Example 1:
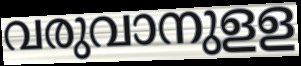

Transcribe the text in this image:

വരുവാനുളള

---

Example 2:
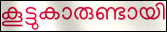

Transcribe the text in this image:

കൂട്ടുകാരുണ്ടായി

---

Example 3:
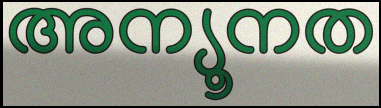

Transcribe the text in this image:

അന്യൂനത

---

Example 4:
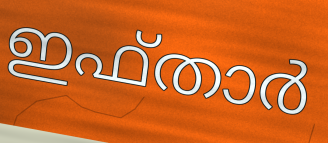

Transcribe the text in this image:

ഇഫ്താർ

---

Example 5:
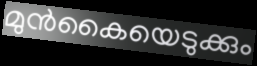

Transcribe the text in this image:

മുൻകൈയെടുക്കും